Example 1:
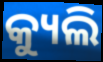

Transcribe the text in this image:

କ୍ୟୁଲି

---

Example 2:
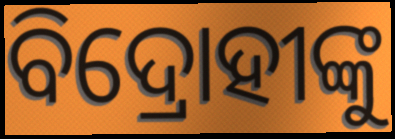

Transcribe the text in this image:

ବିଦ୍ରୋହୀଙ୍କୁ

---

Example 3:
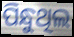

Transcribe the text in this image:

ପିନ୍ଧୁଥିଲ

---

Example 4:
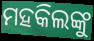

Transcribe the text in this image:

ମହକିଲଙ୍କୁ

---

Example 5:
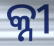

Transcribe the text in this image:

କ୍ନୀ